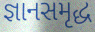
જ્ઞાનસમૃદ્ધ